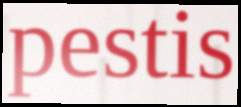
pestis